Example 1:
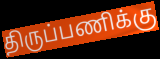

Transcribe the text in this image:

திருப்பணிக்கு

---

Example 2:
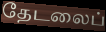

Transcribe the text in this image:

தேடலைப்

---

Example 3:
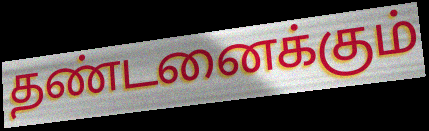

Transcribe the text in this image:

தண்டனைக்கும்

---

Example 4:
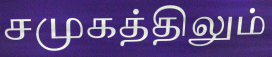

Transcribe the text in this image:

சமுகத்திலும்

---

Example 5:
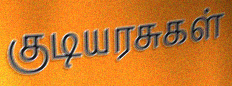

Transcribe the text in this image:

குடியரசுகள்